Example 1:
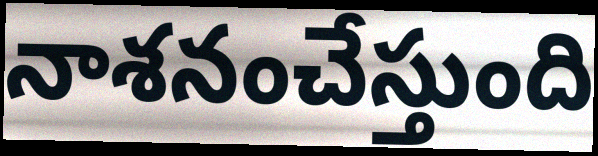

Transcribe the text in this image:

నాశనంచేస్తుంది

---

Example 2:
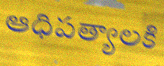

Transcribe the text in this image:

ఆధిపత్యాలకి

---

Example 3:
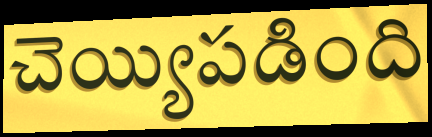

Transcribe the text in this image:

చెయ్యిపడింది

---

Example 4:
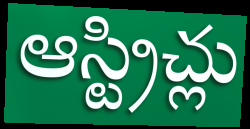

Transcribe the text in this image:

ఆస్ట్రిచ్లు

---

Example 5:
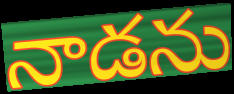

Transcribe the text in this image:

నాడను